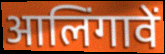
आलिंगावें